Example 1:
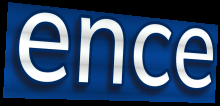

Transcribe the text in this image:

ence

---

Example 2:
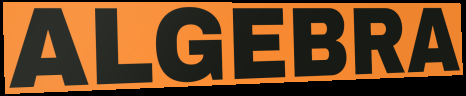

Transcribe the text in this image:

ALGEBRA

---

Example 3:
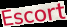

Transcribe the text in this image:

Escort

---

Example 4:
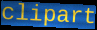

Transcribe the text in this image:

clipart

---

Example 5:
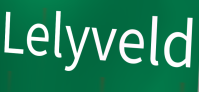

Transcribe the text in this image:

Lelyveld